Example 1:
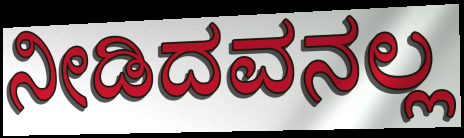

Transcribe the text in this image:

ನೀಡಿದವನಲ್ಲ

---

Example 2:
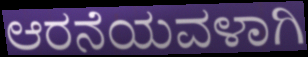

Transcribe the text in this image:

ಆರನೆಯವಳಾಗಿ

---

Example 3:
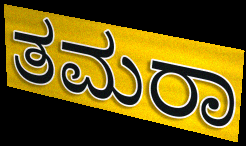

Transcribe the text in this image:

ತಮರಾ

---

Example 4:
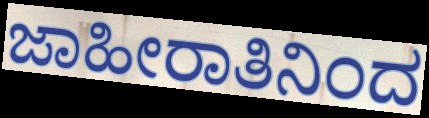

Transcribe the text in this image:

ಜಾಹೀರಾತಿನಿಂದ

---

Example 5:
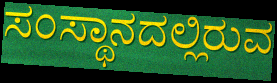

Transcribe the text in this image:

ಸಂಸ್ಥಾನದಲ್ಲಿರುವ